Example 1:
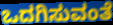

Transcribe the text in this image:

ಒದಗಿಸುವಂತೆ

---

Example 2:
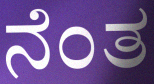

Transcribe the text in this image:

ನೆಂತ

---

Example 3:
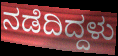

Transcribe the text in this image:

ನಡೆದಿದ್ದಳು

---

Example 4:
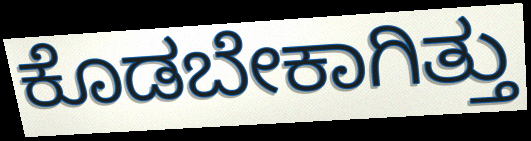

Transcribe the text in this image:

ಕೊಡಬೇಕಾಗಿತ್ತು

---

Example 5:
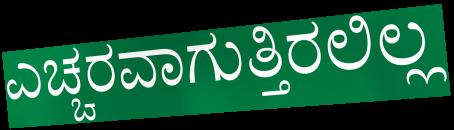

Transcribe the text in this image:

ಎಚ್ಚರವಾಗುತ್ತಿರಲಿಲ್ಲ